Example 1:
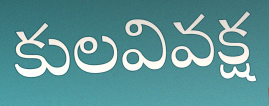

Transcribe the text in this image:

కులవివక్ష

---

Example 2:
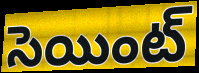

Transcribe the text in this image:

సెయింట్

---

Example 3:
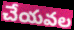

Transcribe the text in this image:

చేయవల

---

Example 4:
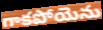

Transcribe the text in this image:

గాకపోయెను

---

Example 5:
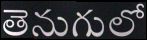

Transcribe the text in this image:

తెనుగులో